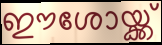
ഈശോയ്ക്ക്